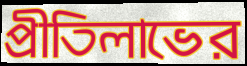
প্রীতিলাভের